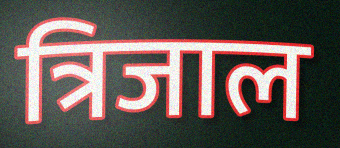
त्रिजाल